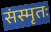
संस्मृतः